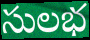
సులభ